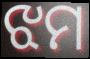
ଝମ